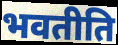
भवतीति